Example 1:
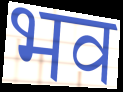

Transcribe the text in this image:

भव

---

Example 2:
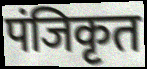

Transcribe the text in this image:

पंजिकृत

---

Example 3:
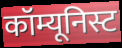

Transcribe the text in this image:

कॉम्यूनिस्ट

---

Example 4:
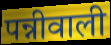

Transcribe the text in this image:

पन्नीवाली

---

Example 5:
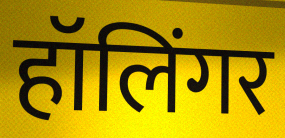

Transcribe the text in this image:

हॉलिंगर